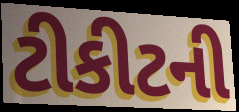
ટીકીટની